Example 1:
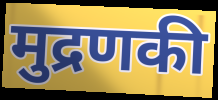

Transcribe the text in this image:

मुद्रणकी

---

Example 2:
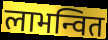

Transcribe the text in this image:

लाभन्वित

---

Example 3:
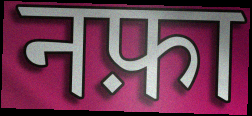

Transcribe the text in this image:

नफ़ा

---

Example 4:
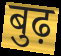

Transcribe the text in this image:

बुढ़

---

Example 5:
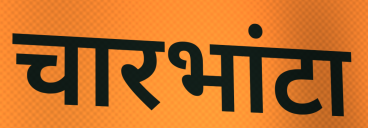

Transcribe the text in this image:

चारभांटा